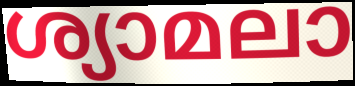
ശ്യാമലാ